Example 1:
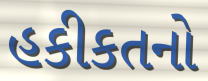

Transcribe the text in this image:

હકીકતનો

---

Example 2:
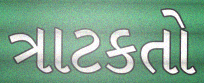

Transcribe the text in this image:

ત્રાટકતો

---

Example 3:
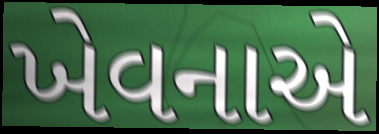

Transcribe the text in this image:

ખેવનાએ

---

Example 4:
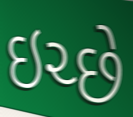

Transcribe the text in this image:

ઇચ્છે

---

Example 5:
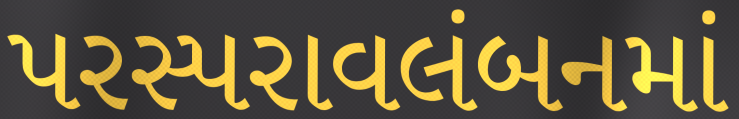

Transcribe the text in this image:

પરસ્પરાવલંબનમાં